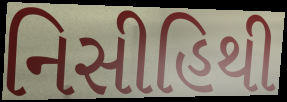
નિસીહિથી